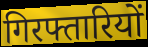
गिरफ्तारियों